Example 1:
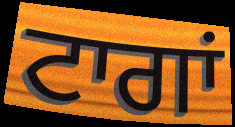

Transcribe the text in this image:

ਟਾਗਾਂ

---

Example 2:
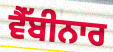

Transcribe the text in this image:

ਵੈੱਬੀਨਾਰ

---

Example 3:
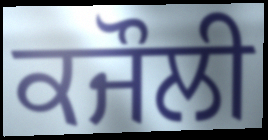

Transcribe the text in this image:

ਕਜੌਲੀ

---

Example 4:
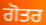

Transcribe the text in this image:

ਗੋਤਰ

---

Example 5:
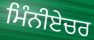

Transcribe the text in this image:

ਮਿੰਨੀਏਚਰ